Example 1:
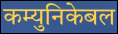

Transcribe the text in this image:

कम्युनिकेबल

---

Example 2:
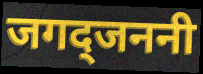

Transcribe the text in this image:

जगद्जननी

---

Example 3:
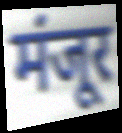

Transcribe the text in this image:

मंजूर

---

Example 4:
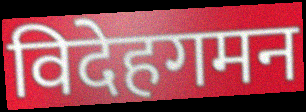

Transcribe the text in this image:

विदेहगमन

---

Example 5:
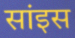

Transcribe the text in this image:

सांइस